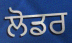
ਲੋਡਰ